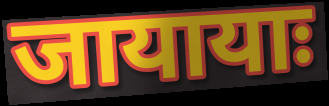
जायायाः